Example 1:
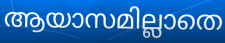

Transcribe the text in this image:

ആയാസമില്ലാതെ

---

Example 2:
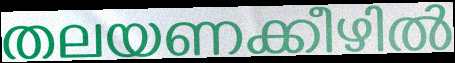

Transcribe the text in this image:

തലയണക്കീഴിൽ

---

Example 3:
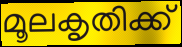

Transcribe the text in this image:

മൂലകൃതിക്ക്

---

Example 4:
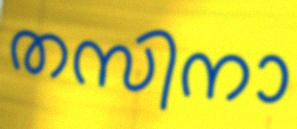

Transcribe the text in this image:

തസിനാ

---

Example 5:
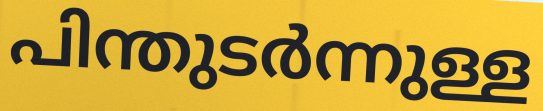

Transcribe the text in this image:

പിന്തുടർന്നുള്ള